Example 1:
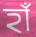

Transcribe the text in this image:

হাঁ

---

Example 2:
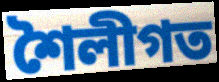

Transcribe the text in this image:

শৈলীগত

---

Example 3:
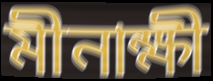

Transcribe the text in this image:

মীনাক্ষী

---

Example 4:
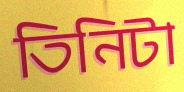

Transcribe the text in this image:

তিনিটা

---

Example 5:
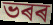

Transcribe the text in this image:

ভৰৰ